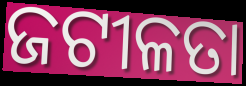
ଜଟୀଳତା